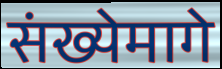
संख्येमागे